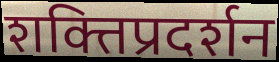
शक्तिप्रदर्शन